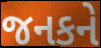
જનકને